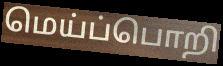
மெய்ப்பொறி